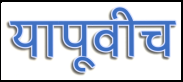
यापूवीच